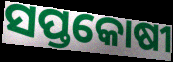
ସପ୍ତକୋଷୀ